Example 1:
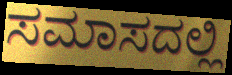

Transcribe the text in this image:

ಸಮಾಸದಲ್ಲಿ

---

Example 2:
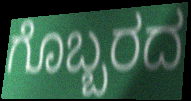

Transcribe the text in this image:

ಗೊಬ್ಬರದ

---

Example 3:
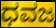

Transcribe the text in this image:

ಧವಜ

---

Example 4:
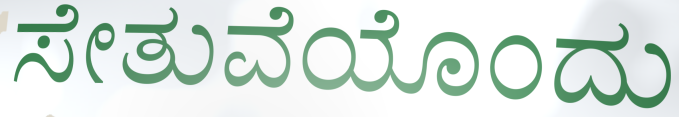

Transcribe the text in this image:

ಸೇತುವೆಯೊಂದು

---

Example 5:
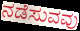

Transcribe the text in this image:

ನಡೆಸುವವು